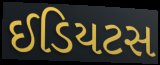
ઈડિયટસ